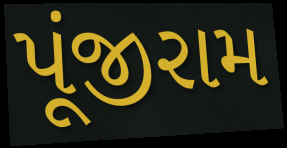
પૂંજીરામ